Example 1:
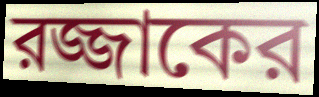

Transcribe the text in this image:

রজ্জাকের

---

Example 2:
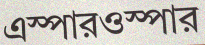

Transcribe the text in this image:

এস্পারওস্পার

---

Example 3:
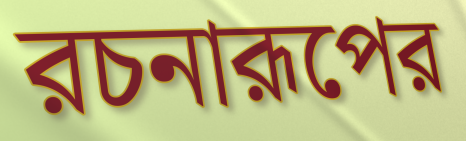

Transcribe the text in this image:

রচনারূপের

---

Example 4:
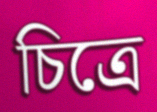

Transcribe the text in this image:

চিত্রে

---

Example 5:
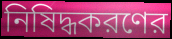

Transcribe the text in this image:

নিষিদ্ধকরণের